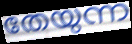
തേയുന്ന